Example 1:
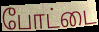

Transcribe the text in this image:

போட்டை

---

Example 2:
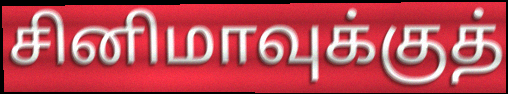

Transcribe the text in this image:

சினிமாவுக்குத்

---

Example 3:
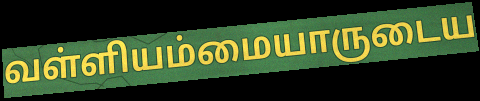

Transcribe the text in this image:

வள்ளியம்மையாருடைய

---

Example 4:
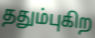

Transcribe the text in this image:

ததும்புகிற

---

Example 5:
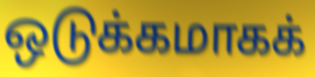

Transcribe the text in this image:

ஒடுக்கமாகக்